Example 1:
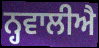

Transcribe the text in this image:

ਨ੍ਹਵਾਲੀਐ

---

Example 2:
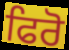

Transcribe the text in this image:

ਫਿਰੋ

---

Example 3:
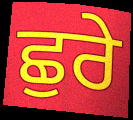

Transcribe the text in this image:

ਛੁਰੇ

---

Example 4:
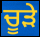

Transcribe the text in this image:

ਚੂੜੇ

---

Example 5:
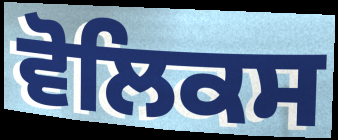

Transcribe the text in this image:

ਵੋਲਿਕਸ